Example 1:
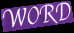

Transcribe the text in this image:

WORD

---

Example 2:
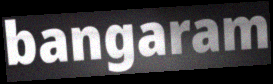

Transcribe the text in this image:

bangaram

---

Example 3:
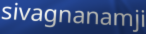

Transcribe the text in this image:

sivagnanamji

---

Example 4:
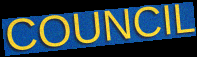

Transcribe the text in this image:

COUNCIL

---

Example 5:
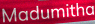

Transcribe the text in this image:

Madumitha